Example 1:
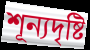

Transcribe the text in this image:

শূন্যদৃষ্টি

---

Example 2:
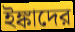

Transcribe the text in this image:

ইঙ্কাদের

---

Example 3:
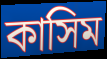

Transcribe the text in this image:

কাসিম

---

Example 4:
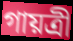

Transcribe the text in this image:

গায়ত্রী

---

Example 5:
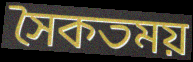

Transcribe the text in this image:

সৈকতময়